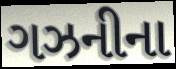
ગઝનીના